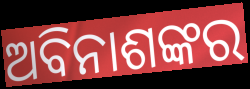
ଅବିନାଶଙ୍କର